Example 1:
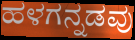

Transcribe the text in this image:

ಹಳಗನ್ನಡವು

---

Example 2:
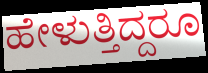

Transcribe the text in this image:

ಹೇಳುತ್ತಿದ್ದರೂ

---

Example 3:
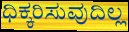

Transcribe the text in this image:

ಧಿಕ್ಕರಿಸುವುದಿಲ್ಲ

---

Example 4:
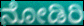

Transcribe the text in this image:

ನೋಡಿರಿ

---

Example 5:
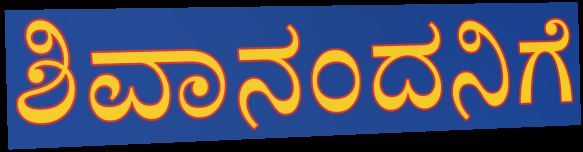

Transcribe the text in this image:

ಶಿವಾನಂದನಿಗೆ